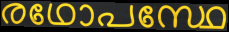
രഥോപസ്ഥേ